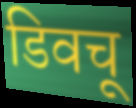
डिवचू